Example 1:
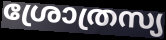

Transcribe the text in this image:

ശ്രോത്രസ്യ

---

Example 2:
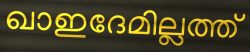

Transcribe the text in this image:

ഖാഇദേമില്ലത്ത്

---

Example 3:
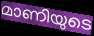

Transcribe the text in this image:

മാണിയുടെ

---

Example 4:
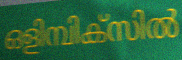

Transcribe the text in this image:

ഒളിമ്പിക്സിൽ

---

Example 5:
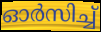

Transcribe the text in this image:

ഓർസിച്ച്